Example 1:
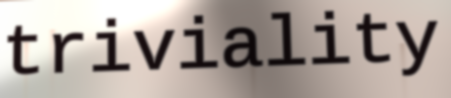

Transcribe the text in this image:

triviality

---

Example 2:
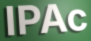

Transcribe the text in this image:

IPAc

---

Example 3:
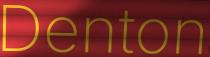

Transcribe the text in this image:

Denton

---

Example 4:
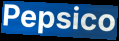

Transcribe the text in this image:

Pepsico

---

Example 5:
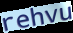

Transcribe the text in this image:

rehvu